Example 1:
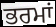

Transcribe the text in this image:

ਭਰਮਾਂ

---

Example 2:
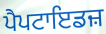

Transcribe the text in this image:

ਪੈਪਟਾਇਡਜ਼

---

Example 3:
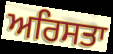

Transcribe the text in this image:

ਅਰਿਸਤਾ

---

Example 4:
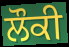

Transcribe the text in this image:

ਲੌਕੀ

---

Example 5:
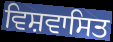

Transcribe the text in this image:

ਵਿਸ਼ਵਾਸਿਤ